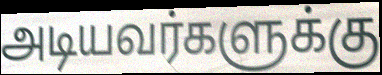
அடியவர்களுக்கு